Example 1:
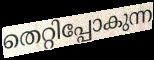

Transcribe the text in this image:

തെറ്റിപ്പോകുന്ന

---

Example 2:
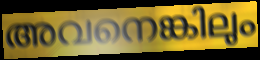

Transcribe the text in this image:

അവനെങ്കിലും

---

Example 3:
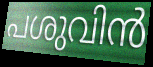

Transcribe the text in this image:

പശുവിൻ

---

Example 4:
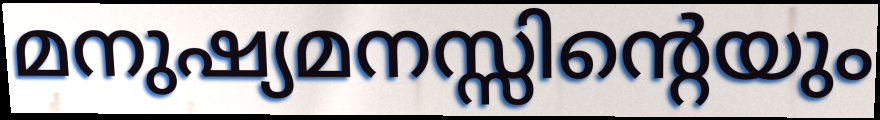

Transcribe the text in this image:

മനുഷ്യമനസ്സിന്റെയും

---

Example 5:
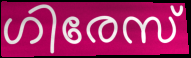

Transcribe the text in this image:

ഗിരേസ്